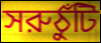
সরুঠুঁটি